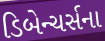
ડિબેન્ચર્સના